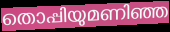
തൊപ്പിയുമണിഞ്ഞ